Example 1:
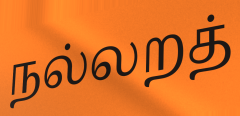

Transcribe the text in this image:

நல்லறத்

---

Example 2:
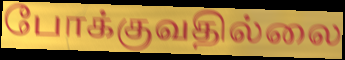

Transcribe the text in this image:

போக்குவதில்லை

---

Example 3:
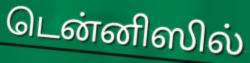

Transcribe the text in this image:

டென்னிஸில்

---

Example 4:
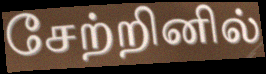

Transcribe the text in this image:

சேற்றினில்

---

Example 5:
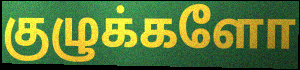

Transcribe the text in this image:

குழுக்களோ